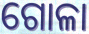
ଗୋଳା